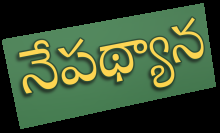
నేపథ్యాన